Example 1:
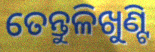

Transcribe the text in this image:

ତେନ୍ତୁଳିଖୁଣ୍ଟି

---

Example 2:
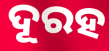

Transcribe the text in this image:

ଦୂରହ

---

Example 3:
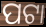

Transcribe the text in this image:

ପଟା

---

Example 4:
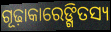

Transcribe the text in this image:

ଗୂଢ଼ାକାରେଙ୍ଗିତସ୍ୟ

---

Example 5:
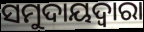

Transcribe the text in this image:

ସମୁଦାୟଦ୍ୱାରା